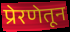
प्रेरणेतून